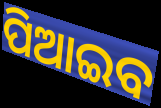
ପିଆଇବ